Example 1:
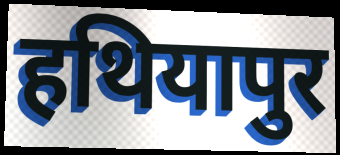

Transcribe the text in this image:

हथियापुर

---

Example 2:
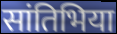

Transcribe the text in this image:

सांतिभिया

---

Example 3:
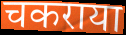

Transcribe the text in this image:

चकराया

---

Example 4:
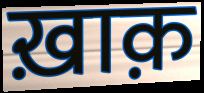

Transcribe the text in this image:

ख़ाक़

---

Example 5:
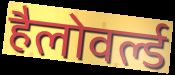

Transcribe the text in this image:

हैलोवर्ल्ड